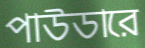
পাউডারে